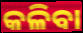
କଳିବା